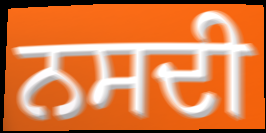
ਨਸਦੀ